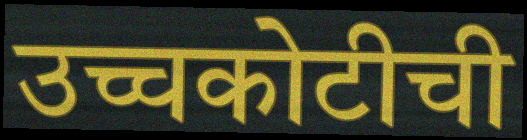
उच्चकोटीची